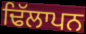
ਢਿੱਲਾਪਨ